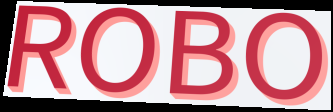
ROBO